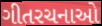
ગીતરચનાઓ